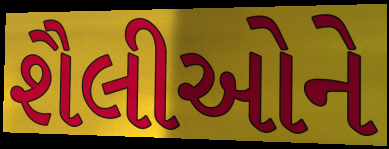
શૈલીઓને